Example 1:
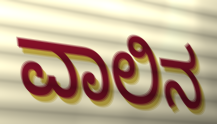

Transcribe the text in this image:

ವಾಲಿನ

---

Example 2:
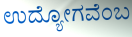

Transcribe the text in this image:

ಉದ್ಯೋಗವೆಂಬ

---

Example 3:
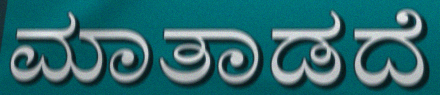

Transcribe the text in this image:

ಮಾತಾಡದೆ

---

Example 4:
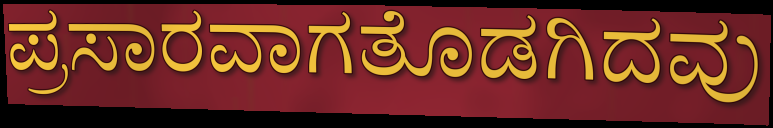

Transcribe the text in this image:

ಪ್ರಸಾರವಾಗತೊಡಗಿದವು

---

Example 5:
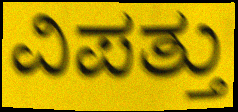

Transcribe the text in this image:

ವಿಪತ್ತು